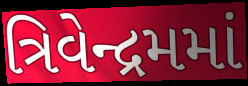
ત્રિવેન્દ્રમમાં